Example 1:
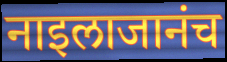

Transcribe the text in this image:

नाइलाजानंच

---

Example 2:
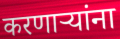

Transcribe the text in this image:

करणाऱ्यांना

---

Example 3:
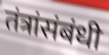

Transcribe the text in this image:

तंत्रांसंबंधी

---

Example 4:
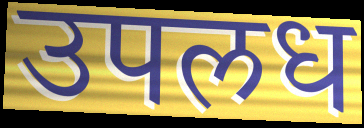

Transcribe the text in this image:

उपलध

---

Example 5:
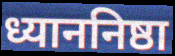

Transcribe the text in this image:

ध्याननिष्ठा